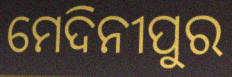
ମେଦିନୀପୁର